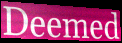
Deemed